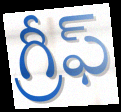
గ్రీఫ్